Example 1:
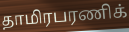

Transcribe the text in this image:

தாமிரபரணிக்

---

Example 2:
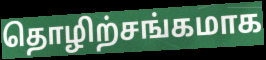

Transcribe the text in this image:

தொழிற்சங்கமாக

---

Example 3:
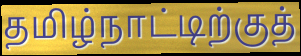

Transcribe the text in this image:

தமிழ்நாட்டிற்குத்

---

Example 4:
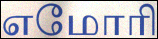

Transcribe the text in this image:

எமோரி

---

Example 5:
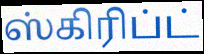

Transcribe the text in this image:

ஸ்கிரிப்ட்